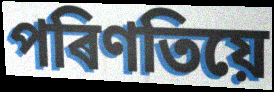
পৰিণতিয়ে